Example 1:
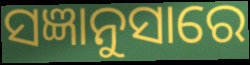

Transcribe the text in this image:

ସଜ୍ଞାନୁସାରେ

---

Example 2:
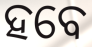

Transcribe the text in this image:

ହବେ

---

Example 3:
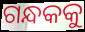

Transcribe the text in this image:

ଗନ୍ଧକକୁ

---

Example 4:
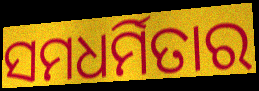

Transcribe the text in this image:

ସମଧର୍ମିତାର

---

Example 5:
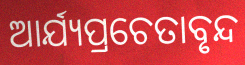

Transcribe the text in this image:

ଆର୍ଯ୍ୟପ୍ରଚେତାବୃନ୍ଦ